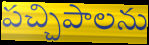
పచ్చిపాలను